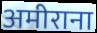
अमीराना